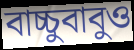
বাচ্চুবাবুও